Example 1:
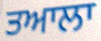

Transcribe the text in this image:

ਤਆਲਾ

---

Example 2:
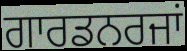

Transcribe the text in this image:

ਗਾਰਡਨਰਜਾਂ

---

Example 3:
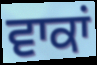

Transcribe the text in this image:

ਵਾਕਾਂ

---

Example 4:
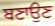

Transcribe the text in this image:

ਬਣਾਉਣ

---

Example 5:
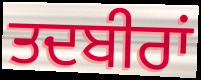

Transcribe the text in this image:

ਤਦਬੀਰਾਂ